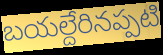
బయల్దేరినప్పటి